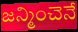
జన్మించెనే